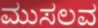
ಮುಸಲವ